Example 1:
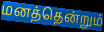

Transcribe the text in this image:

மனத்தென்றும்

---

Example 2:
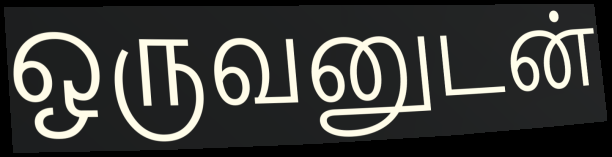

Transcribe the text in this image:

ஒருவனுடன்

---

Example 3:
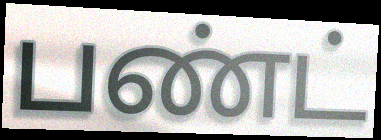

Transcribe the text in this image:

பண்ட்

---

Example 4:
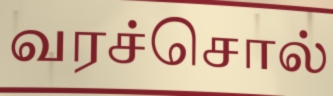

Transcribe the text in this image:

வரச்சொல்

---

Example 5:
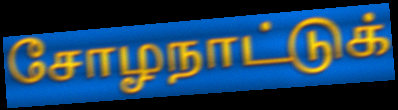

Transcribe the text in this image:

சோழநாட்டுக்